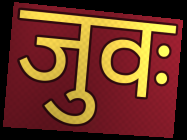
जुवः